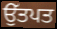
ਉੱਤਪਤ